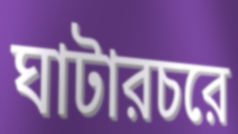
ঘাটারচরে